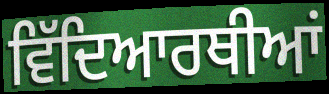
ਵਿੱਦਿਆਰਥੀਆਂ